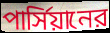
পার্সিয়ানের